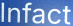
Infact